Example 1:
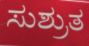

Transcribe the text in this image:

ಸುಶ್ರುತ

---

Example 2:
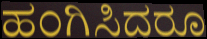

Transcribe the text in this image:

ಹಂಗಿಸಿದರೂ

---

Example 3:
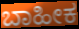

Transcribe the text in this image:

ಬಾಹೀಕ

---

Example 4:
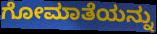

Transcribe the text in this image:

ಗೋಮಾತೆಯನ್ನು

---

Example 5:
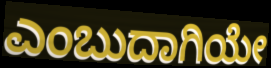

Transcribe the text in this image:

ಎಂಬುದಾಗಿಯೇ